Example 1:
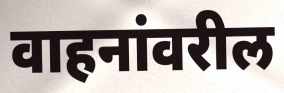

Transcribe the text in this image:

वाहनांवरील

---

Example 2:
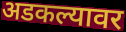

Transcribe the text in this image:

अडकल्यावर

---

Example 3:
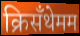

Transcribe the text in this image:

क्रिसँथेमम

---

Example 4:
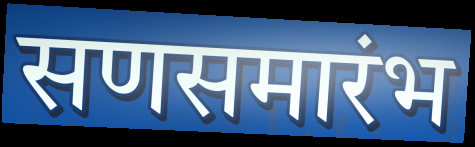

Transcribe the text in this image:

सणसमारंभ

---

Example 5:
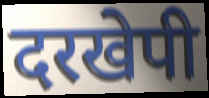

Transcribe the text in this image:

दरखेपी